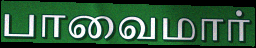
பாவைமார்